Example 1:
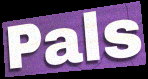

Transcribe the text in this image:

Pals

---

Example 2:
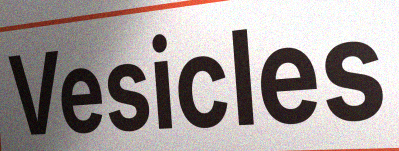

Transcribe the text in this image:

Vesicles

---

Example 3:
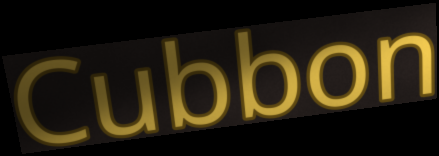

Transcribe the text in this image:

Cubbon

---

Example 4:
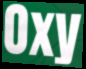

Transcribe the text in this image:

Oxy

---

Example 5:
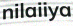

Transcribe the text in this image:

nilaiiya